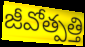
జీవోత్పత్తి